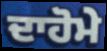
ਦਾਹੋਮੇ